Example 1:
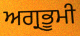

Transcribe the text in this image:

ਅਗ੍ਰਭੂਮੀ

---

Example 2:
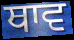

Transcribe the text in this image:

ਥਾਵ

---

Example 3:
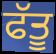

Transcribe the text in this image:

ਫੱਤੂ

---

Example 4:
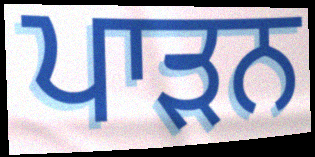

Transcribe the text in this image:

ਪਾੜਨ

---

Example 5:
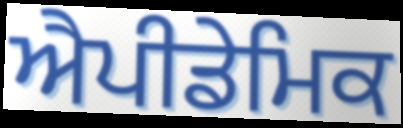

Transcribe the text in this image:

ਐਪੀਡੇਮਿਕ